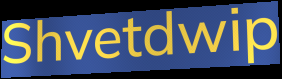
Shvetdwip